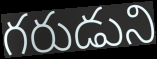
గరుడుని